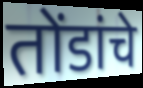
तोंडांचे